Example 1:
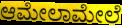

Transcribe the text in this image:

ಆಮೇಲಾಮೇಲೆ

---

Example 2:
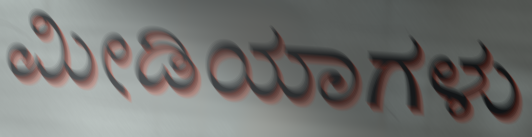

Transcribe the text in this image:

ಮೀಡಿಯಾಗಳು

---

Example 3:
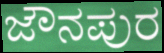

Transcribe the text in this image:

ಜೌನಪುರ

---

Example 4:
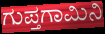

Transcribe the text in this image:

ಗುಪ್ತಗಾಮಿನಿ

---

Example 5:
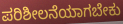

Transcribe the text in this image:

ಪರಿಶೀಲನೆಯಾಗಬೇಕು